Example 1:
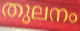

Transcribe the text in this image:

തുലനം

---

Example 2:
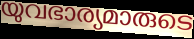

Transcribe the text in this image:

യുവഭാര്യമാരുടെ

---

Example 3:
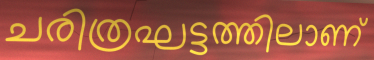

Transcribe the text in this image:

ചരിത്രഘട്ടത്തിലാണ്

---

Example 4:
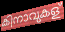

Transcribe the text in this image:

കിനാവുകള്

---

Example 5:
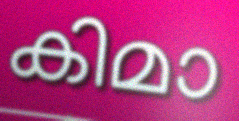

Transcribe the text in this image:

കിമാ